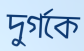
দুর্গকে